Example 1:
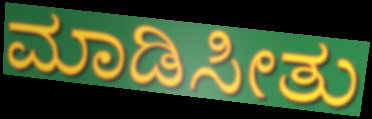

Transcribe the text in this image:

ಮಾಡಿಸೀತು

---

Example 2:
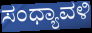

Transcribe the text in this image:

ಸಂಧ್ಯಾವಳಿ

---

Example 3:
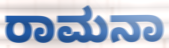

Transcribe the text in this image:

ರಾಮನಾ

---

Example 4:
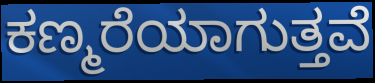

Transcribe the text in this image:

ಕಣ್ಮರೆಯಾಗುತ್ತವೆ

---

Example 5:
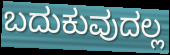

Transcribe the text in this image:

ಬದುಕುವುದಲ್ಲ